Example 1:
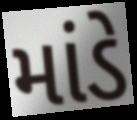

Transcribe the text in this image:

માંડે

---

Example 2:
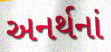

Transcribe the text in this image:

અનર્થનાં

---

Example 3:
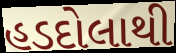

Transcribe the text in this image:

હડદોલાથી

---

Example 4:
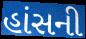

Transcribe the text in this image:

હાંસની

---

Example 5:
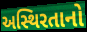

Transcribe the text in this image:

અસ્થિરતાનો